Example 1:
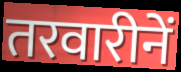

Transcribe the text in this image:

तरवारीनें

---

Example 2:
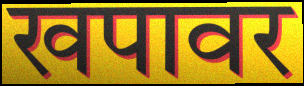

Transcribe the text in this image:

खपावर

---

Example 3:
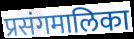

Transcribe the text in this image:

प्रसंगमालिका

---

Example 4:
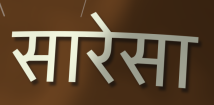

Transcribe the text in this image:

सारेसा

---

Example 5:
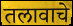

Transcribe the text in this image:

तलावाचे